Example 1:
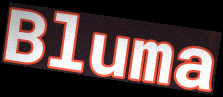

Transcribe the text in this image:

Bluma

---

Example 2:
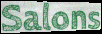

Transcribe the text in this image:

Salons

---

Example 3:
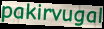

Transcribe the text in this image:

pakirvugal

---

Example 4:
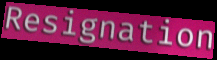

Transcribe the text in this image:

Resignation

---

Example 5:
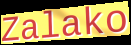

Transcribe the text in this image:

Zalako